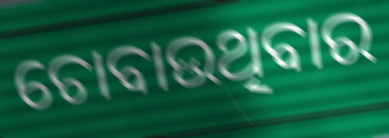
ଚୋବାଉଥିବାର